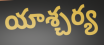
యాశ్చర్య